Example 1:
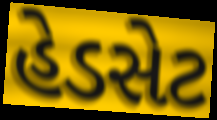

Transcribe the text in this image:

હેડસેટ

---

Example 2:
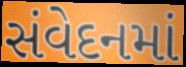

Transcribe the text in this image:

સંવેદનમાં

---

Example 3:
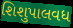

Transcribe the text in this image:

શિશુપાલવધ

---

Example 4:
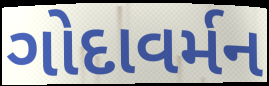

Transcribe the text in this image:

ગોદાવર્મન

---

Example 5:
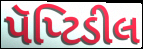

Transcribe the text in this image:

પૅપ્ટિડીલ